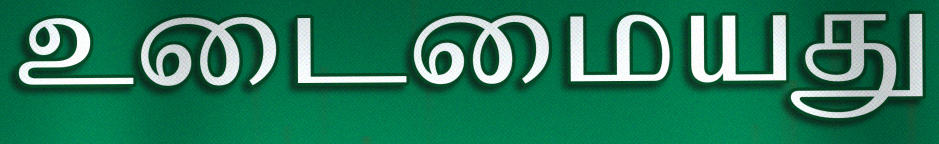
உடைமையது